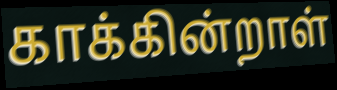
காக்கின்றாள்